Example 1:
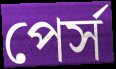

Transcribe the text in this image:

পের্স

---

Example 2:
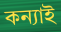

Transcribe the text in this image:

কন্যাই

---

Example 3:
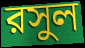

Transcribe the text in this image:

রসুল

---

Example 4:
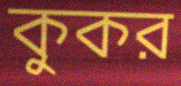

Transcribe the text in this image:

কুকর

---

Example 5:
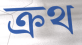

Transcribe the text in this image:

ক্রথ